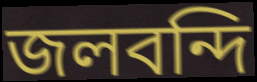
জলবন্দি